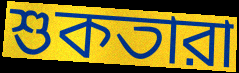
শুকতারা